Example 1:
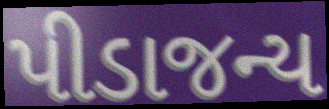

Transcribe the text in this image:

પીડાજન્ય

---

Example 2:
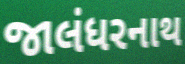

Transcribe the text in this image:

જાલંધરનાથ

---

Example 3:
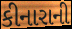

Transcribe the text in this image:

કીનારાની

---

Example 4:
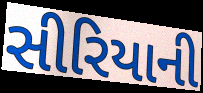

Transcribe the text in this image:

સીરિયાની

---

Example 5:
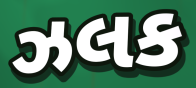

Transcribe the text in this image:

ઝલક